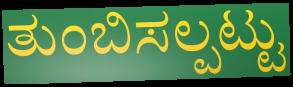
ತುಂಬಿಸಲ್ಪಟ್ಟು